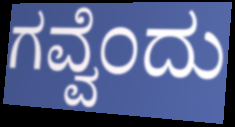
ಗವ್ವೆಂದು